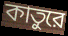
কাতুরে